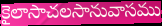
కైలాసాచలసానువాసము